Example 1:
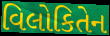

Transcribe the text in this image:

વિલોકિતેન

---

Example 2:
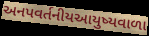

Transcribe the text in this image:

અનપવર્તનીયઆયુષ્યવાળા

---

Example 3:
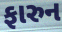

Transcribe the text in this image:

ફારુન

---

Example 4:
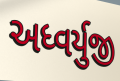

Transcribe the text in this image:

અધ્વર્યુજી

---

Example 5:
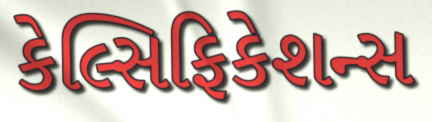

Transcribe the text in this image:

કેલ્સિફિકેશન્સ